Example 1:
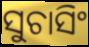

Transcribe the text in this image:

ସୁଚାସିଂ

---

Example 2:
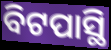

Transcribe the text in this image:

ବିଟପାସ୍ଥି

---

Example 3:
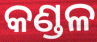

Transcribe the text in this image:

କଣ୍ଡଳ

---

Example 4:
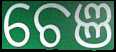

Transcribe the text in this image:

ଚେଞ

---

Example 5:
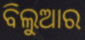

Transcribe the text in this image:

ବିଲୁଆର